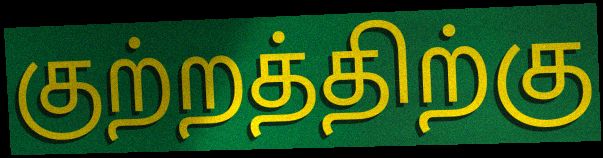
குற்றத்திற்கு